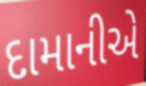
દામાનીએ